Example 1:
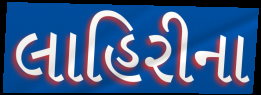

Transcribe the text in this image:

લાહિરીના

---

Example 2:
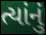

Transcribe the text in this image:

ત્યાંનું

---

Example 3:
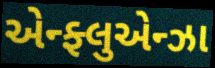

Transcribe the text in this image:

એન્ફ્લુએન્ઝા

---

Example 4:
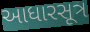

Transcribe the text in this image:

આધારસૂત્ર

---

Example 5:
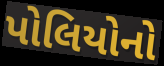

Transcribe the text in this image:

પોલિયોનો